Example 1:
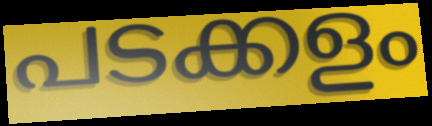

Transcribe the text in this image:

പടക്കളം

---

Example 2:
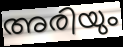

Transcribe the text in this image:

അരിയും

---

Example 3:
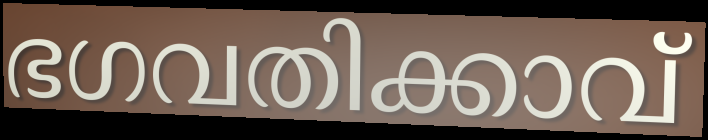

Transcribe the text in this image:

ഭഗവതിക്കാവ്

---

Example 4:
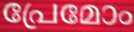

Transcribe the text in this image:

പ്രേമോം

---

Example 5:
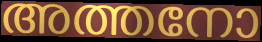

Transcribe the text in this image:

അത്തനോ